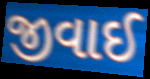
જીવાઈ